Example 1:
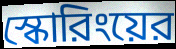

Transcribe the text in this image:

স্কোরিংয়ের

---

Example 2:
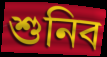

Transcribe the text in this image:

শুনিব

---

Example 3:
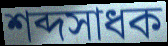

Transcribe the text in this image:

শব্দসাধক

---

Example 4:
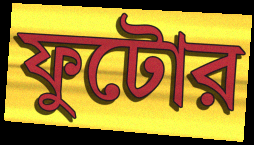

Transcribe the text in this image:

ফুটোর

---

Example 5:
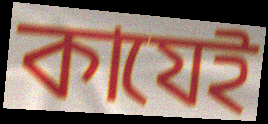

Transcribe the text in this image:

কাযেই